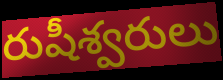
రుషీశ్వరులు